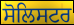
ਸੋਲਿਸਟਰ